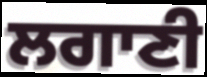
ਲਗਾਣੀ